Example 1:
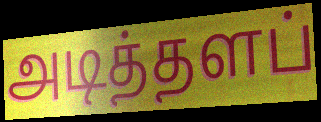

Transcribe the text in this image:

அடித்தளப்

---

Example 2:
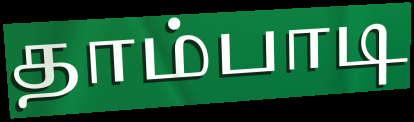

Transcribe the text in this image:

தாம்பாடி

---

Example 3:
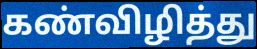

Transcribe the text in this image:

கண்விழித்து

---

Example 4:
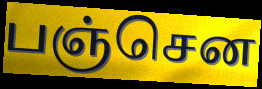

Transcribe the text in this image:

பஞ்சென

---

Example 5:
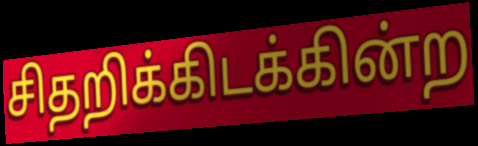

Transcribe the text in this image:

சிதறிக்கிடக்கின்ற